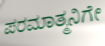
ಪರಮಾತ್ಮನಿಗೇ